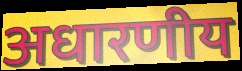
अधारणीय